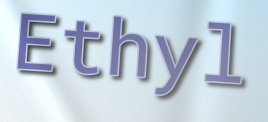
Ethyl